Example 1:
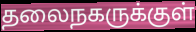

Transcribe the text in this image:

தலைநகருக்குள்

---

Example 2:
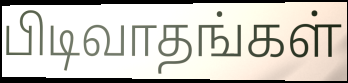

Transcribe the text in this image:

பிடிவாதங்கள்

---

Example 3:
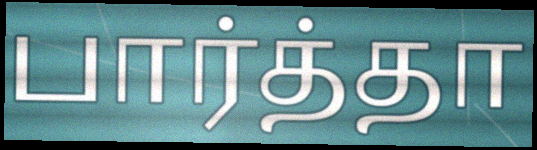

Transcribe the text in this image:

பார்த்தா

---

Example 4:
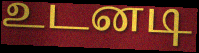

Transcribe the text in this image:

உடனடி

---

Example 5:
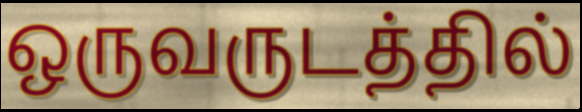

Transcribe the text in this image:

ஒருவருடத்தில்